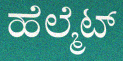
ಹೆಲ್ಮೆಟ್